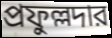
প্রফুল্লদার